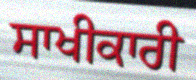
ਸਾਖੀਕਾਰੀ